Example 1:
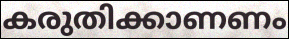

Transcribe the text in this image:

കരുതിക്കാണണം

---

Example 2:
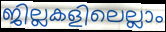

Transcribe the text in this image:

ജില്ലകളിലെല്ലാം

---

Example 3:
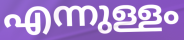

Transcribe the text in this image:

എന്നുള്ളം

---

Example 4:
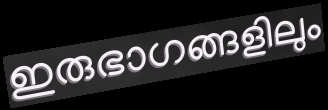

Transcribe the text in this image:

ഇരുഭാഗങ്ങളിലും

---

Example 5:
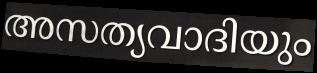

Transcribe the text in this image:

അസത്യവാദിയും